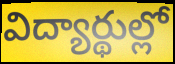
విద్యార్థుల్లో